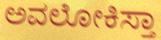
ಅವಲೋಕಿಸ್ತಾ